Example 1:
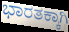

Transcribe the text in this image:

ಭಾರತಕ್ಕಾಗಿ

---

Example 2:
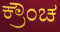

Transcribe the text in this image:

ಕ್ರೌಂಚ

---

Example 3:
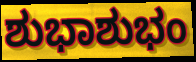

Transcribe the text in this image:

ಶುಭಾಶುಭಂ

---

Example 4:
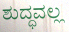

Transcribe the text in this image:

ಶುದ್ಧವಲ್ಲ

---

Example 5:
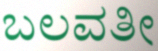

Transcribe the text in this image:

ಬಲವತೀ